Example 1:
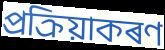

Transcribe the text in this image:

প্ৰক্ৰিয়াকৰণ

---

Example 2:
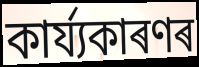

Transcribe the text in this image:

কাৰ্য্যকাৰণৰ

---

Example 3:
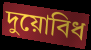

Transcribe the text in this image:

দুয়োবিধ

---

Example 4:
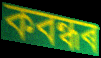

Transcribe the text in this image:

কবন্ধৰ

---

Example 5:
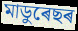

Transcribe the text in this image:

মাডুৰেছৰ